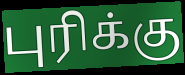
புரிக்கு